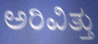
ಅರಿವಿತ್ತು